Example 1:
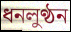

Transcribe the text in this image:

ধনলুণ্ঠন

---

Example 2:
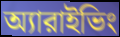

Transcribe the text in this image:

অ্যারাইভিং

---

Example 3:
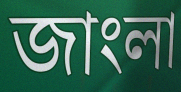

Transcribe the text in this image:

জাংলা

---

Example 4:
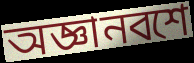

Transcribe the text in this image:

অজ্ঞানবশে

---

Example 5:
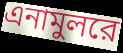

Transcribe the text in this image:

এনামুলরে